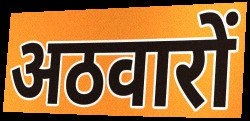
अठवारों